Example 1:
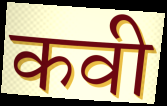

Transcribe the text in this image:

कवी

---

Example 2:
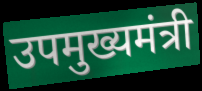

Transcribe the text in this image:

उपमुख्यमंत्री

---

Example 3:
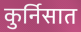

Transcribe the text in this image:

कुर्निसात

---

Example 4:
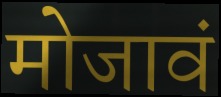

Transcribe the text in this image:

मोजावं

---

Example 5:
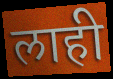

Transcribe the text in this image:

लाही